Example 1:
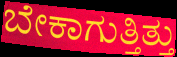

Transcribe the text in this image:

ಬೇಕಾಗುತ್ತಿತ್ತು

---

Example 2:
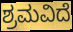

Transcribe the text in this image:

ಶ್ರಮವಿದೆ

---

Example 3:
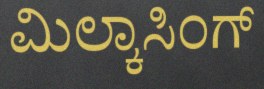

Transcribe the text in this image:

ಮಿಲ್ಕಾಸಿಂಗ್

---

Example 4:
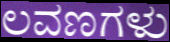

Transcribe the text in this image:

ಲವಣಗಳು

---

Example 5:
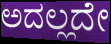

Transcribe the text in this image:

ಅದಲ್ಲದೇ